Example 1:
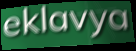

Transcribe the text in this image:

eklavya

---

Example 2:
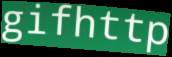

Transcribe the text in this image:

gifhttp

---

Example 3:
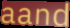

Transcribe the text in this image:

aand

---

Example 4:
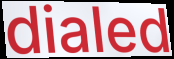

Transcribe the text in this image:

dialed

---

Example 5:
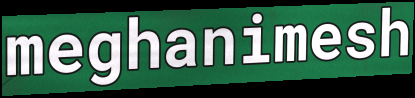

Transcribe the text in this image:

meghanimesh